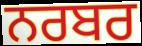
ਨਰਬਰ